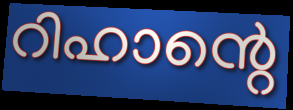
റിഹാന്റെ